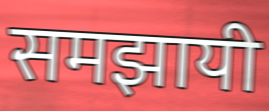
समझायी